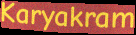
Karyakram